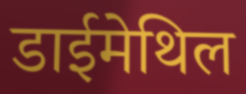
डाईमेथिल